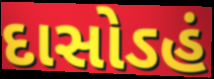
દાસોઽહં